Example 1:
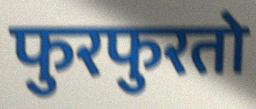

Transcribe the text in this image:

फुरफुरतो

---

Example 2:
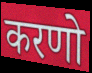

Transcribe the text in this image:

करणो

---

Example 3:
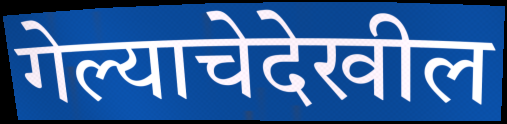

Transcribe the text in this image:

गेल्याचेदेखील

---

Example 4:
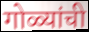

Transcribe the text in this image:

गोळ्यांची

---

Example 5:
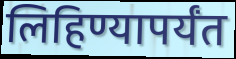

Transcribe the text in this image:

लिहिण्यापर्यंत